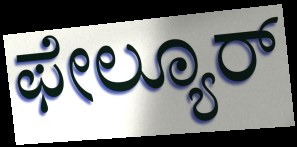
ಫೇಲ್ಯೂರ್